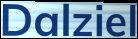
Dalziel